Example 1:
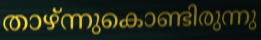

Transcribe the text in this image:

താഴ്ന്നുകൊണ്ടിരുന്നു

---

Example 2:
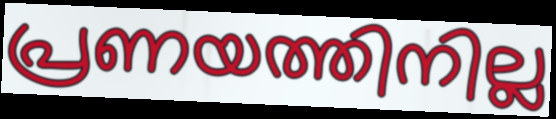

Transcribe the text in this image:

പ്രണയത്തിനില്ല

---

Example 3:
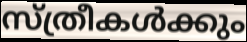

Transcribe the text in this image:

സ്ത്രീകൾക്കും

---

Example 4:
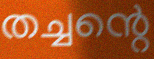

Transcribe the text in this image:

തച്ചന്റെ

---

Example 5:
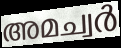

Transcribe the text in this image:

അമച്വർ